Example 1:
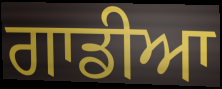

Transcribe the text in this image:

ਗਾਡੀਆ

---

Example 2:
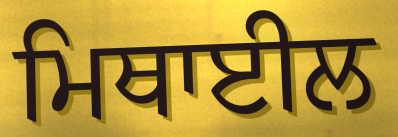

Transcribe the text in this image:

ਮਿਥਾਈਲ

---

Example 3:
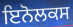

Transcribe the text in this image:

ਇਨੋਲਕਸ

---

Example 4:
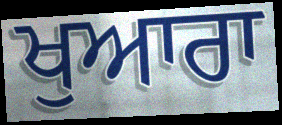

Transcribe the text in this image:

ਖੁਆਰਾ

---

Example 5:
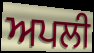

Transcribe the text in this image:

ਅਪਲੀ